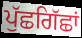
ਪੁੱਛਗਿੱਛਾਂ